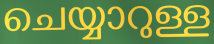
ചെയ്യാറുള്ള